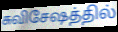
சுவிசேஷத்தில்